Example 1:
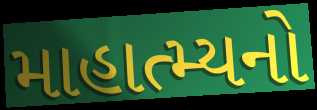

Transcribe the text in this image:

માહાત્મ્યનો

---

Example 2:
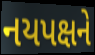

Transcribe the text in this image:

નયપક્ષને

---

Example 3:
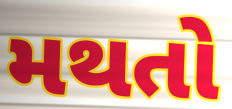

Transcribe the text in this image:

મથતો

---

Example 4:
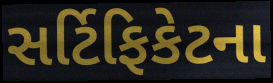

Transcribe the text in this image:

સર્ટિફિકેટના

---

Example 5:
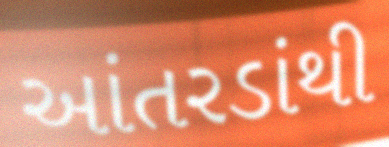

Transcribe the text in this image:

આંતરડાંથી